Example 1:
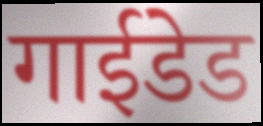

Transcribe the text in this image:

गाईडेड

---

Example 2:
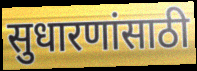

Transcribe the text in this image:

सुधारणांसाठी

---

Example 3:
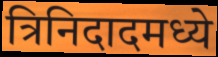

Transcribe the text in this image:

त्रिनिदादमध्ये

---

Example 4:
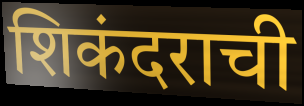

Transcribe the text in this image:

शिकंदराची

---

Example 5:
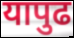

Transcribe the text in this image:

यापुढ